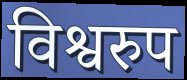
विश्वरुप